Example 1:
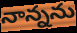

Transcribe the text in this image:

నాన్నను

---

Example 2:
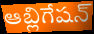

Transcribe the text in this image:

ఆబ్లిగేషన్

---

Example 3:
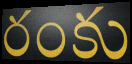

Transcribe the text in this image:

రంకు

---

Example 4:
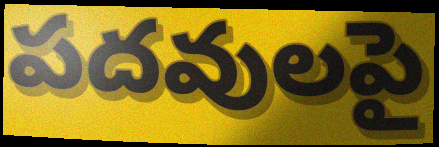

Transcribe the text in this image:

పదవులపై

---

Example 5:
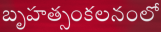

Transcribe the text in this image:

బృహత్సంకలనంలో